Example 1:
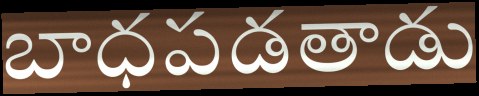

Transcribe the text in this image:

బాధపడతాడు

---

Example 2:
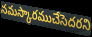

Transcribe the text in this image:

నమస్కారముచేసెదరని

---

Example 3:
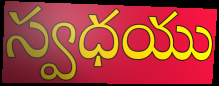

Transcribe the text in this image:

స్వధయు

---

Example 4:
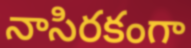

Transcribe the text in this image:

నాసిరకంగా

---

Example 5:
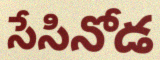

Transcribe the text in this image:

సేసినోడ